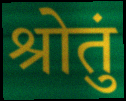
श्रोतुं